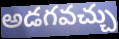
అడగవచ్చు